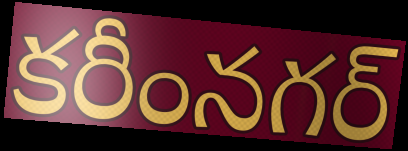
కరీంనగర్